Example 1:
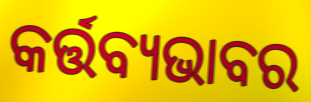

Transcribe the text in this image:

କର୍ତ୍ତବ୍ୟଭାବର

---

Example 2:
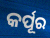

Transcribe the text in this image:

କର୍ପୂର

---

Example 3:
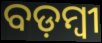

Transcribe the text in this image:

ବଡ଼ମ୍ବୀ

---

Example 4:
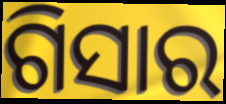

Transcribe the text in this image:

ଗିସାର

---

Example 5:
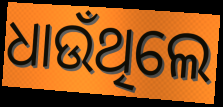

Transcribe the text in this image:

ଧାଉଁଥିଲେ